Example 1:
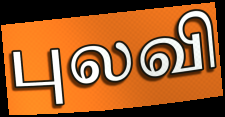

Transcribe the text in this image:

புலவி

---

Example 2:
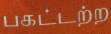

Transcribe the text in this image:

பகட்டற்ற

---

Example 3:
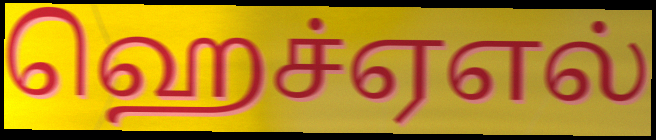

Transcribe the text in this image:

ஹெச்ஏஎல்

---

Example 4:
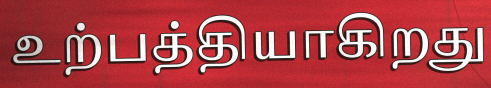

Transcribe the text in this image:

உற்பத்தியாகிறது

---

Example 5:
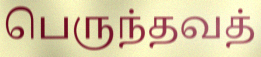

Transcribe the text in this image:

பெருந்தவத்